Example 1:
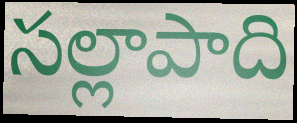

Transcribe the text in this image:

సల్లాపాది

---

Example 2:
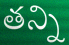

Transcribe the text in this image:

తన్ని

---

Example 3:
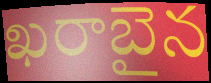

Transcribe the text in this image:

ఖరాబైన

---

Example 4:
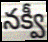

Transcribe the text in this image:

నక్వీ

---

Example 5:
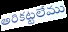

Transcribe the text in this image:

అరికట్టలేము